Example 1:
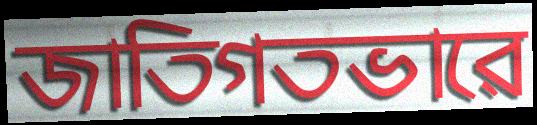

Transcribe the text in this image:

জাতিগতভাৱে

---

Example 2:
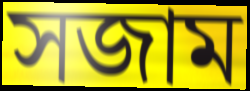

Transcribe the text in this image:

সজাম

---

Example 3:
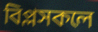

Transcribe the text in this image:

বিপ্লসকলে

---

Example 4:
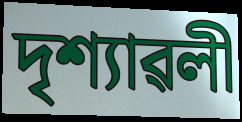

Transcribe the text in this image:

দৃশ্যাৱলী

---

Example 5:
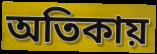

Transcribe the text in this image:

অতিকায়